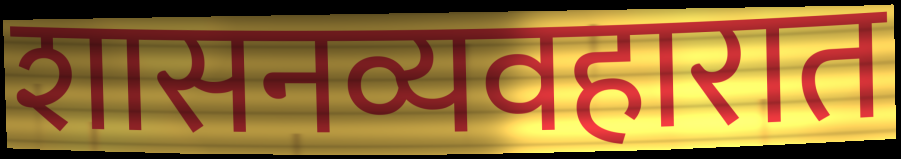
शासनव्यवहारात